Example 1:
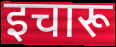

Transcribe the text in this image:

इचारू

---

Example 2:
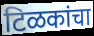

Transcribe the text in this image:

टिळकांचा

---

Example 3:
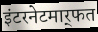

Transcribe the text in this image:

इंटरनेटमार्फत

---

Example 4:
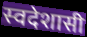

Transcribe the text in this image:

स्वदेशासी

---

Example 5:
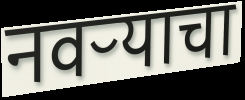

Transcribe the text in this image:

नवऱ्याचा